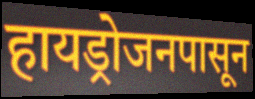
हायड्रोजनपासून